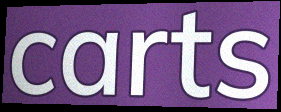
carts